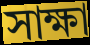
সাক্ষা